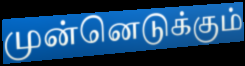
முன்னெடுக்கும்